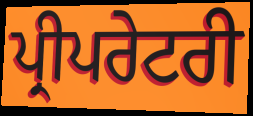
ਪ੍ਰੀਪਰੇਟਰੀ